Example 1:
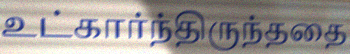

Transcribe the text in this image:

உட்கார்ந்திருந்ததை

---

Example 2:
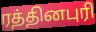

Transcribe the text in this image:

ரத்தினபுரி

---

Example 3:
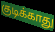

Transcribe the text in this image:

குடிக்காது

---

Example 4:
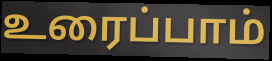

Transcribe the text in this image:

உரைப்பாம்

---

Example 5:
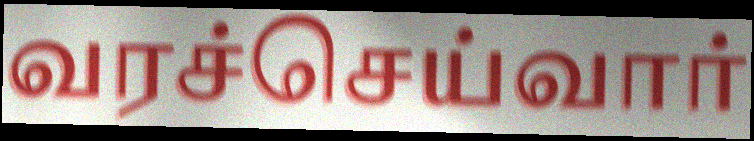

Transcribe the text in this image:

வரச்செய்வார்